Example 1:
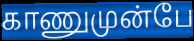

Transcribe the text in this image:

காணுமுன்பே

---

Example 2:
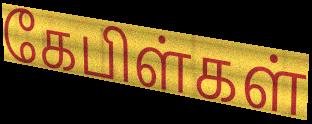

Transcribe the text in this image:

கேபிள்கள்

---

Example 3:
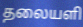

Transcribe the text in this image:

தலையளி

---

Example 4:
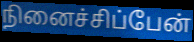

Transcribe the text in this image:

நினைச்சிப்பேன்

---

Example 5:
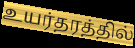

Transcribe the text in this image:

உயர்தரத்தில்